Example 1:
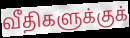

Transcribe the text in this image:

வீதிகளுக்குக்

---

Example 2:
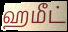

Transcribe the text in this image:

ஹமீட்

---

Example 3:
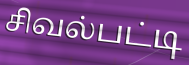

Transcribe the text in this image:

சிவல்பட்டி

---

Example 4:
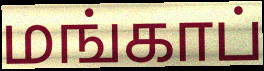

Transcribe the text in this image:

மங்காப்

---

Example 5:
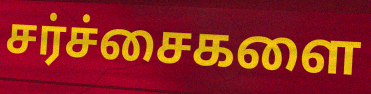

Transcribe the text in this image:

சர்ச்சைகளை